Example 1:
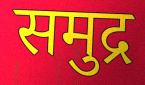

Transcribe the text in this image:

समुद्र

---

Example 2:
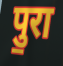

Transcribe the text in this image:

पु॒रा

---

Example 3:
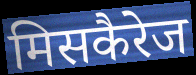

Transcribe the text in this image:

मिसकैरेज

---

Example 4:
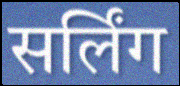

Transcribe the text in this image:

सर्लिंग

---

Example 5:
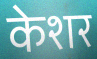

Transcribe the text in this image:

केशर